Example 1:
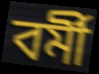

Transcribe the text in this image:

বৰ্মী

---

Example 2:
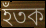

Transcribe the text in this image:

হঁতক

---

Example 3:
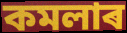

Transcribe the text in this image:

কমলাৰ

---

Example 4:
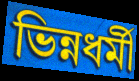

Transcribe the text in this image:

ভিন্নধৰ্মী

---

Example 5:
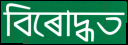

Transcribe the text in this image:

বিৰোদ্ধত